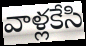
వాళ్లకేసి